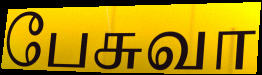
பேசுவா